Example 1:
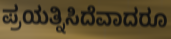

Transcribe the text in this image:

ಪ್ರಯತ್ನಿಸಿದೆವಾದರೂ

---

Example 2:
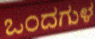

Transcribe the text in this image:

ಒಂದಗುಳ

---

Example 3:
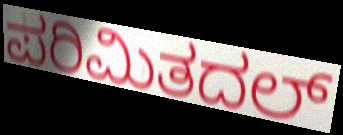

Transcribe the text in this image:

ಪರಿಮಿತದಲ್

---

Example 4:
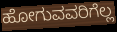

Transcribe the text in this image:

ಹೋಗುವವರಿಗೆಲ್ಲ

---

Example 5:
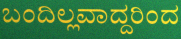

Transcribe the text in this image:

ಬಂದಿಲ್ಲವಾದ್ದರಿಂದ